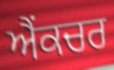
ਐਂਕਚਰ